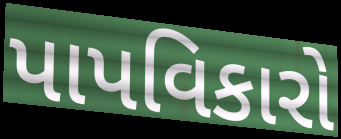
પાપવિકારો